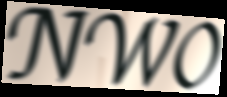
NWO